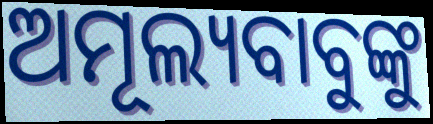
ଅମୂଲ୍ୟବାବୁଙ୍କୁ